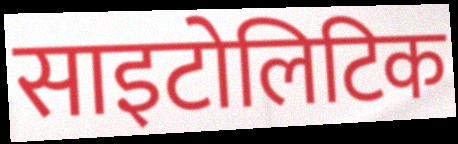
साइटोलिटिक